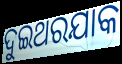
ଦୁଇଥରଯାକ